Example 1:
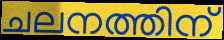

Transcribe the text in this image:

ചലനത്തിന്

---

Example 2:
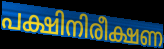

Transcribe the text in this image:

പക്ഷിനിരീക്ഷണ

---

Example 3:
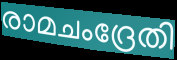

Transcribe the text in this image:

രാമചംദ്രേതി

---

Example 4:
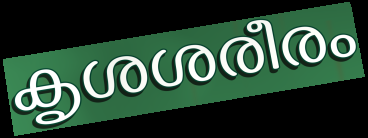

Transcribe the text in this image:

കൃശശരീരം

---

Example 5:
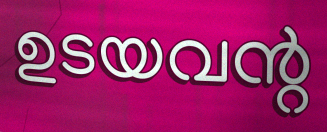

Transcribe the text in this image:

ഉടയവന്റ